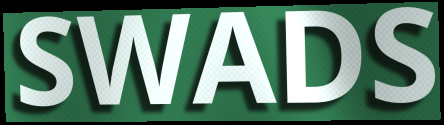
SWADS